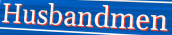
Husbandmen